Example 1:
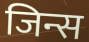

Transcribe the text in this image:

जिन्‍स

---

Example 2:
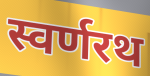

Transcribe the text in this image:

स्वर्णरथ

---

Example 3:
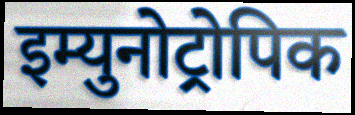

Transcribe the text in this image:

इम्युनोट्रोपिक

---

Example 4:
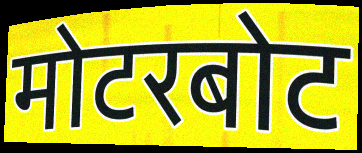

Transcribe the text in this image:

मोटरबोट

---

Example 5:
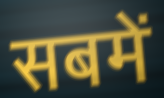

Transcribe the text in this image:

सबमें